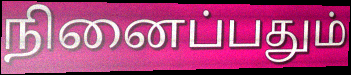
நினைப்பதும்